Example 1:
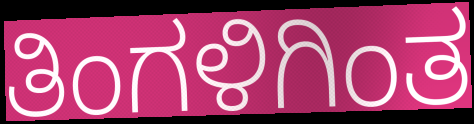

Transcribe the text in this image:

ತಿಂಗಳಿಗಿಂತ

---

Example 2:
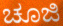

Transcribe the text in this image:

ಚೂಜಿ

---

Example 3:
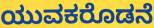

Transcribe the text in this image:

ಯುವಕರೊಡನೆ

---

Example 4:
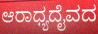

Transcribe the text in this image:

ಆರಾಧ್ಯದೈವದ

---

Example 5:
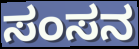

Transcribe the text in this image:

ಸಂಸನ